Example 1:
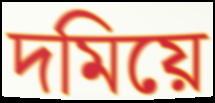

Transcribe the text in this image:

দমিয়ে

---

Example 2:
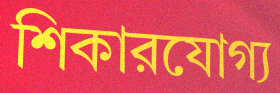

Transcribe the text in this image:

শিকারযোগ্য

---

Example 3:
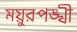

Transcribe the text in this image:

ময়ুরপঙ্খী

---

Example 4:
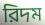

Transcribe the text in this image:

রিদম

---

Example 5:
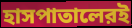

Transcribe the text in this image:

হাসপাতালেরই